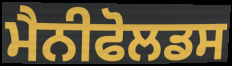
ਮੈਨੀਫੋਲਡਸ